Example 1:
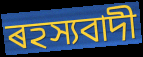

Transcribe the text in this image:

ৰহস্যবাদী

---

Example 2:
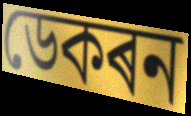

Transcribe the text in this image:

ডেকৰন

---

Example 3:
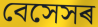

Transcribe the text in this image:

বেসেসৰ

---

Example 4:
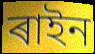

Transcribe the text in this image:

ৰাইন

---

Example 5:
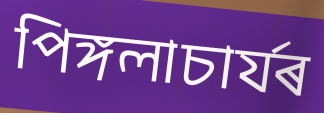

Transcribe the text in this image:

পিঙ্গলাচাৰ্যৰ